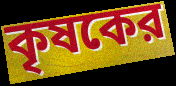
কৃষকের